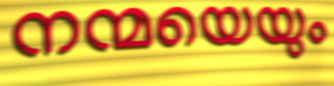
നന്മയെയും